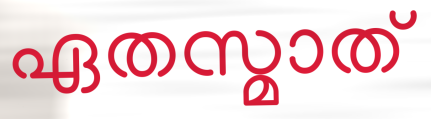
ഏതസ്മാത്